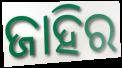
ଜାହିର